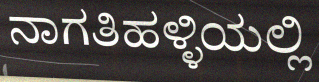
ನಾಗತಿಹಳ್ಳಿಯಲ್ಲಿ